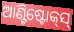
ଆଣ୍ଟିଷ୍ଟୋକ୍‍ସ୍